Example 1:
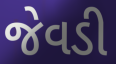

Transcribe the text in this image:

જેવડી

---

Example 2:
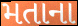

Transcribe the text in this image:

મતાના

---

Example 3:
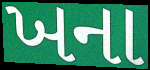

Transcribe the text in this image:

ખના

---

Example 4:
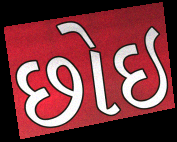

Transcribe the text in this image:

છોઇ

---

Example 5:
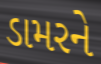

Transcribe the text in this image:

ડામરને